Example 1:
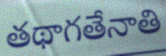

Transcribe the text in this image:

తథాగతేనాతి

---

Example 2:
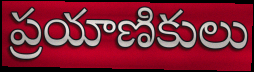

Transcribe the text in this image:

ప్రయాణికులు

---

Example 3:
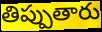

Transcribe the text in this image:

తిప్పుతారు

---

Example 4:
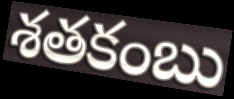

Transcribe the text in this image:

శతకంబు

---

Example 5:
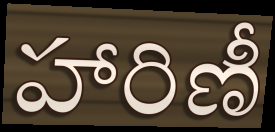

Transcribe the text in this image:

హారిణీ